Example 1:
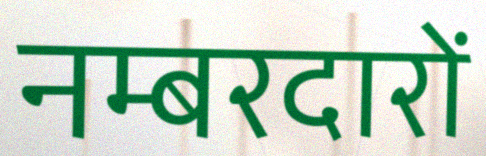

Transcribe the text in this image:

नम्बरदारों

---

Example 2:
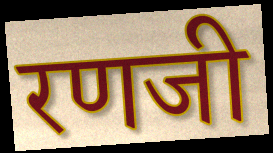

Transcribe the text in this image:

रणजी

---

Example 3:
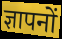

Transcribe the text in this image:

ज्ञापनों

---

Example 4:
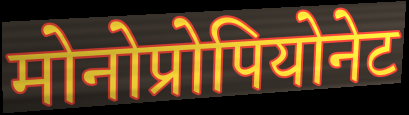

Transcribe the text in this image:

मोनोप्रोपियोनेट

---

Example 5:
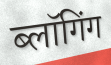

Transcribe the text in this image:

ब्लॉगिंग